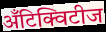
अँटिक्विटीज